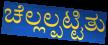
ಚೆಲ್ಲಲ್ಪಟ್ಟಿತು